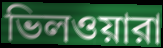
ভিলওয়ারা